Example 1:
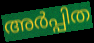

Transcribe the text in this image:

അർപ്പിത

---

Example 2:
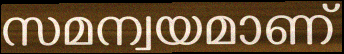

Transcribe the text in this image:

സമന്വയമാണ്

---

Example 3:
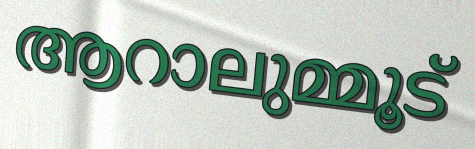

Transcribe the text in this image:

ആറാലുമ്മൂട്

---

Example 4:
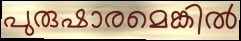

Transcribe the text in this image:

പുരുഷാരമെങ്കിൽ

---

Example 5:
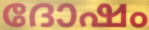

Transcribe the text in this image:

ദോഷം